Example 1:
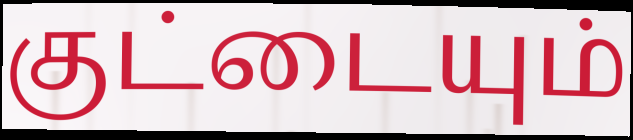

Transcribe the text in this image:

குட்டையும்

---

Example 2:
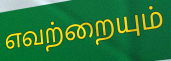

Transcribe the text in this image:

எவற்றையும்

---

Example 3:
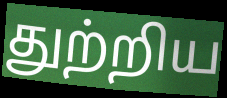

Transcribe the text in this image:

துற்றிய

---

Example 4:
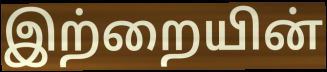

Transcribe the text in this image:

இற்றையின்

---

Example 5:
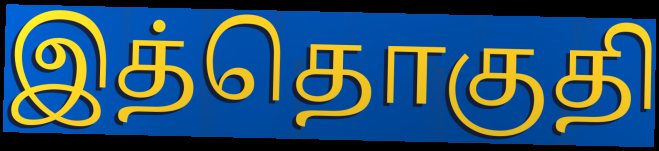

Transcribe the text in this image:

இத்தொகுதி